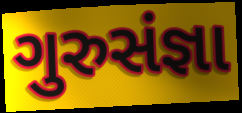
ગુરુસંજ્ઞા